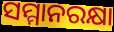
ସମ୍ମାନରକ୍ଷା